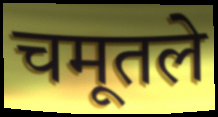
चमूतले